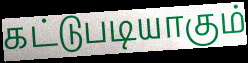
கட்டுபடியாகும்